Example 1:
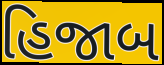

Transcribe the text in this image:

હિજાબ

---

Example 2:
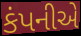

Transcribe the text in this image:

કંપનીએ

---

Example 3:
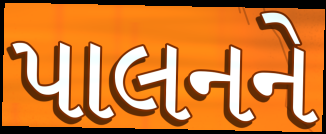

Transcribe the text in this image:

પાલનને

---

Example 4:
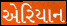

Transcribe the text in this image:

એરિયાન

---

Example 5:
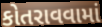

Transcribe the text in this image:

કોતરાવવામાં